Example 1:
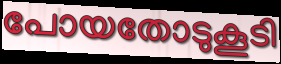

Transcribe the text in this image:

പോയതോടുകൂടി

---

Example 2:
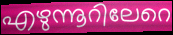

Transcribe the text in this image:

എഴുന്നൂറിലേറെ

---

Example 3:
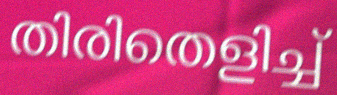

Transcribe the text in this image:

തിരിതെളിച്ച്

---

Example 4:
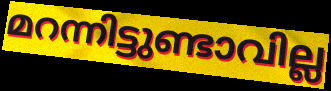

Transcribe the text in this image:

മറന്നിട്ടുണ്ടാവില്ല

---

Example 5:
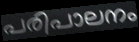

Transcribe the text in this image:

പരിപാലനം